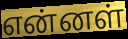
என்னள்